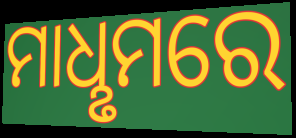
ମାଧୢମରେ